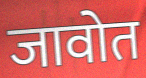
जावोत